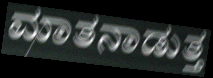
ಮಾತನಾಡುತ್ತ